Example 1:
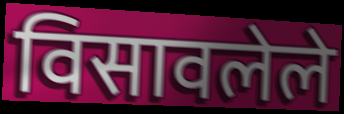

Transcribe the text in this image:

विसावलेले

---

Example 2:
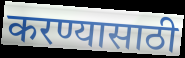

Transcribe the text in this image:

करण्‍यासाठी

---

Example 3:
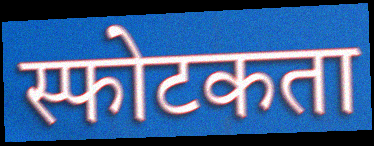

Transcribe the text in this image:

स्फोटकता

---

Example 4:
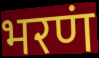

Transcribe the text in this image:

भरणं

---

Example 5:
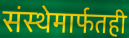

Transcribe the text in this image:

संस्थेमार्फतही